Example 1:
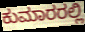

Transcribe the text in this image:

ಕುಮಾರರಲ್ಲಿ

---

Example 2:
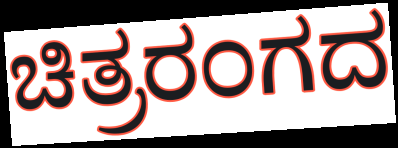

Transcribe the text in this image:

ಚಿತ್ರರಂಗದ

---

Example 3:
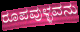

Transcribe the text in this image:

ರೂಪವುಳ್ಳವನು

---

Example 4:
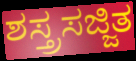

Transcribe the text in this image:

ಶಸ್ತ್ರಸಜ್ಜಿತ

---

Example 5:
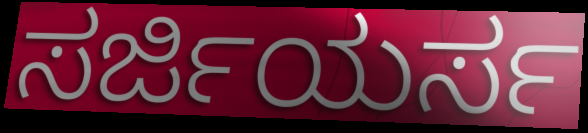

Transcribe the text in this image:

ಸರ್ಜಿಯರ್ಸ